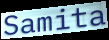
Samita